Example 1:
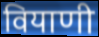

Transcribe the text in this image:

वियाणी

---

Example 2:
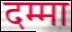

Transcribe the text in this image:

दम्मा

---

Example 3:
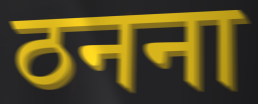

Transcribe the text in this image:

ठनना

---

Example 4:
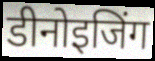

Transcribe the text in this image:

डीनोइजिंग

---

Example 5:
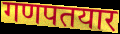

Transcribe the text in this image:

गणपतयार